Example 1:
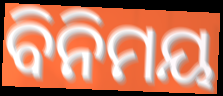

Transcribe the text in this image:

ବିନିମୟ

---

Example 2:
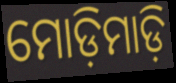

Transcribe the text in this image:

ମୋଡ଼ିମାଡ଼ି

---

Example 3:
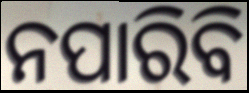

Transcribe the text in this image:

ନପାରିବି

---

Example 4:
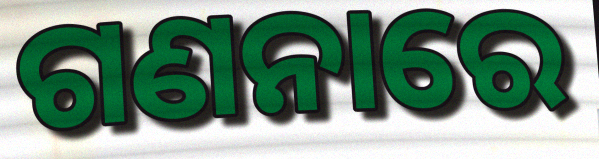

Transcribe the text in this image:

ଗଣନାରେ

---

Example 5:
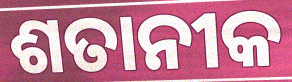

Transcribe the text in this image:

ଶତାନୀକ